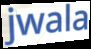
jwala